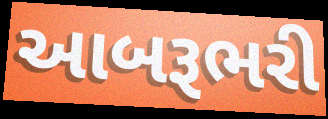
આબરૂભરી